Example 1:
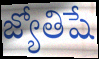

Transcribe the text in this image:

జ్యోతిషే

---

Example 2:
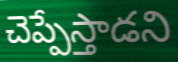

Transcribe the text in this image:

చెప్పేస్తాడని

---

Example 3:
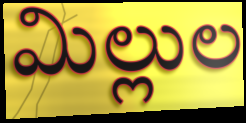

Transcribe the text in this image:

మిల్లుల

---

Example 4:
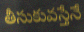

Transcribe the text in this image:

తీసుకువస్తేనే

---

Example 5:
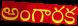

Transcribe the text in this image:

అంగారక